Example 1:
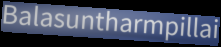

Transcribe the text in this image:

Balasuntharmpillai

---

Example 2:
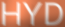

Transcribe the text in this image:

HYD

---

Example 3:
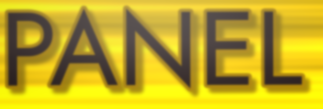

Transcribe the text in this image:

PANEL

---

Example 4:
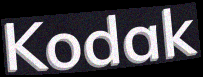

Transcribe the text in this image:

Kodak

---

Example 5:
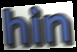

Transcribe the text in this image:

hin